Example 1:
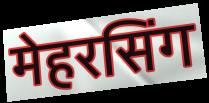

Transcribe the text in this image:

मेहरसिंग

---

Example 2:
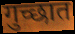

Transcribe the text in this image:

गुच्छात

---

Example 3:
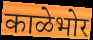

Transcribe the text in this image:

काळेभोर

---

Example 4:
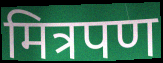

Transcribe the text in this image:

मित्रपण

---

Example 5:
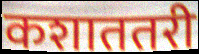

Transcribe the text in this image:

कशाततरी